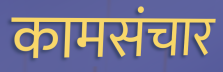
कामसंचार